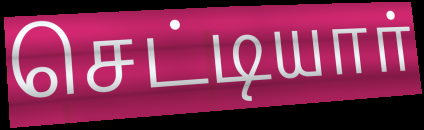
செட்டியார்